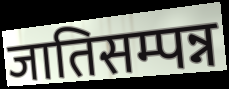
जातिसम्पन्न